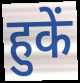
हुकें